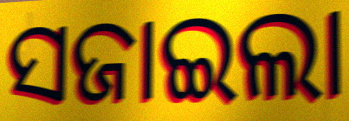
ସଜାଇଲା